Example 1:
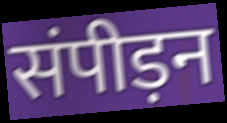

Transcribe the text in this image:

संपीड़न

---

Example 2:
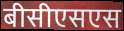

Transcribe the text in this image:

बीसीएसएस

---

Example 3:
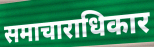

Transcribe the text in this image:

समाचाराधिकार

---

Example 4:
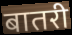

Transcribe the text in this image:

बातरी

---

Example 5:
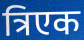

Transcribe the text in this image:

त्रिएक